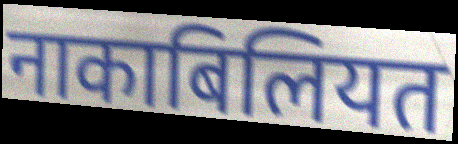
नाकाबिलियत